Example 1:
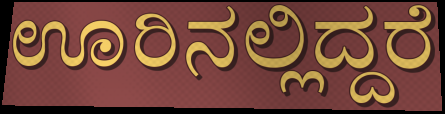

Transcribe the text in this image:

ಊರಿನಲ್ಲಿದ್ದರೆ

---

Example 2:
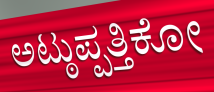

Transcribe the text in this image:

ಅಟ್ಠುಪ್ಪತ್ತಿಕೋ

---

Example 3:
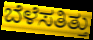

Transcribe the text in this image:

ಬೆಳೆಸತಿತ್ತು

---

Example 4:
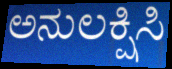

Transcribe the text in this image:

ಅನುಲಕ್ಷಿಸಿ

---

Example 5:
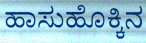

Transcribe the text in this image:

ಹಾಸುಹೊಕ್ಕಿನ